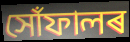
সোঁফালৰ